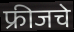
फ्रीजचे